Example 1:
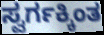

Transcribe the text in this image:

ಸ್ವರ್ಗಕ್ಕಿಂತ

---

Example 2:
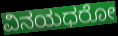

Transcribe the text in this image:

ವಿನಯಧರೋ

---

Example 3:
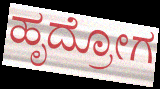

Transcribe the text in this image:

ಹೃದ್ರೋಗ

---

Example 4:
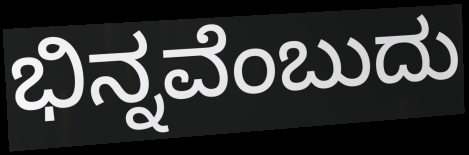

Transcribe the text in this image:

ಭಿನ್ನವೆಂಬುದು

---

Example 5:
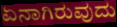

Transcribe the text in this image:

ಏನಾಗಿರುವುದು